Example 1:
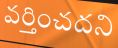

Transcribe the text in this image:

వర్తించదని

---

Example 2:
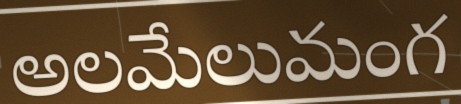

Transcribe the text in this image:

అలమేలుమంగ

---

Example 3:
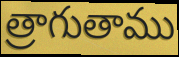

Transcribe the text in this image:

త్రాగుతాము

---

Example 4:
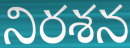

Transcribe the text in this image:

నిరశన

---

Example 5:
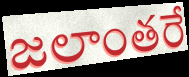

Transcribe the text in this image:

జలాంతరే